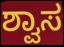
ಶ್ವಾಸ